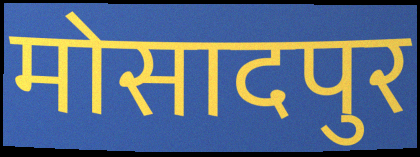
मोसादपुर